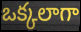
ఒక్కలాగా